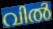
വിൽ